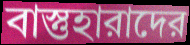
বাস্তুহারাদের